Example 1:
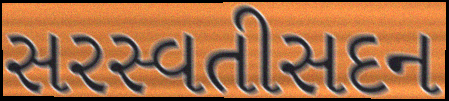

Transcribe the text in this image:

સરસ્વતીસદન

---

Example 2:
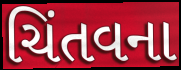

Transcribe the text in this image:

ચિંતવના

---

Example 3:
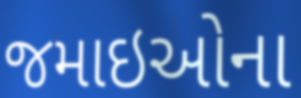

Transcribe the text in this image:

જમાઇઓના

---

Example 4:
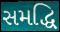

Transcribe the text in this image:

સમદ્ધિ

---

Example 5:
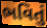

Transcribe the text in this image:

ભવિતું